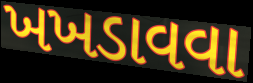
ખખડાવવા